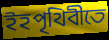
ইহপৃথিবীতে